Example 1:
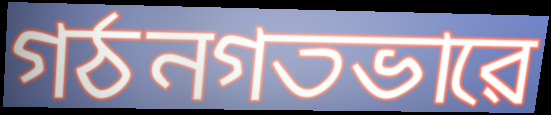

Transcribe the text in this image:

গঠনগতভাৱে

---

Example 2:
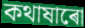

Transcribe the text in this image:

কথাষাৰো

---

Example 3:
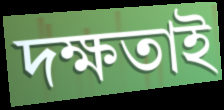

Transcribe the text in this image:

দক্ষতাই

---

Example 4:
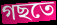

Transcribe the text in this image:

গছতে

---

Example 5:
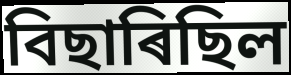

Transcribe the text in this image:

বিছাৰিছিল